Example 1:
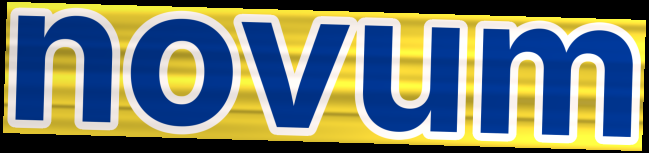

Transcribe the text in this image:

novum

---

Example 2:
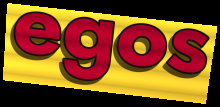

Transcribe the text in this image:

egos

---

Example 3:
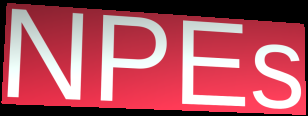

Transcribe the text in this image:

NPEs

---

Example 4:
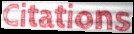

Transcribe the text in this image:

Citations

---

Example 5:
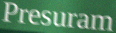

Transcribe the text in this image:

Presuram